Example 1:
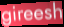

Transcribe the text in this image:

gireesh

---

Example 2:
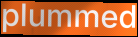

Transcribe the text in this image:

plummed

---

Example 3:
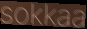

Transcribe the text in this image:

sokkaa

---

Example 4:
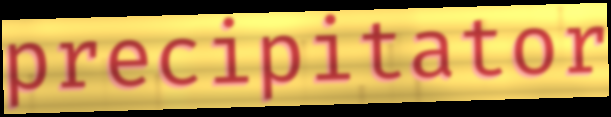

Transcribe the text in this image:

precipitator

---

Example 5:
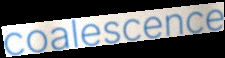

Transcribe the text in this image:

coalescence